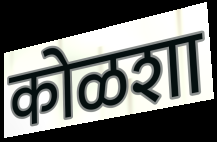
कोळशा